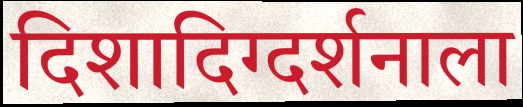
दिशादिग्दर्शनाला